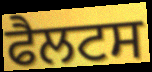
ਫੈਲਟਸ